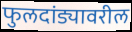
फुलदांड्यावरील